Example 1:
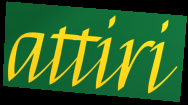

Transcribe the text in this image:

attiri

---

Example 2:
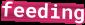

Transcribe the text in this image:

feeding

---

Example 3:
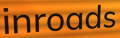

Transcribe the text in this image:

inroads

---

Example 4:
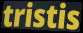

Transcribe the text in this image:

tristis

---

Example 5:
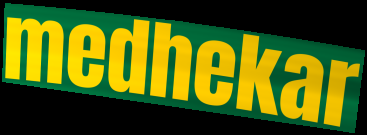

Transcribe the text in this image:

medhekar